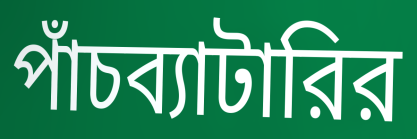
পাঁচব্যাটারির